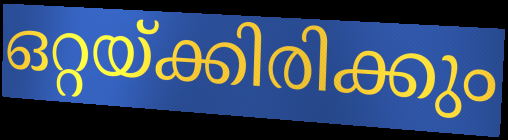
ഒറ്റയ്ക്കിരിക്കും